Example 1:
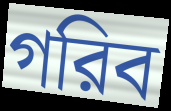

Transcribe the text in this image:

গরিব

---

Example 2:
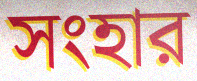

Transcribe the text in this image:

সংহার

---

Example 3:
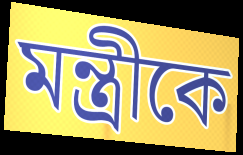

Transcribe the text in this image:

মন্ত্রীকে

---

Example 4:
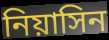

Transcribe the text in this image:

নিয়াসিন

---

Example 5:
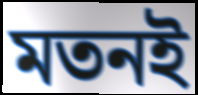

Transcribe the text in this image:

মতনই